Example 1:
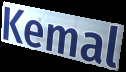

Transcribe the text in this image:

Kemal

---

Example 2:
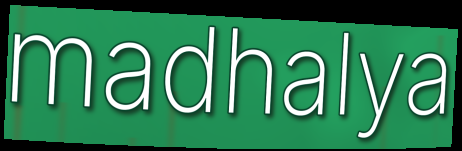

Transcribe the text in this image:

madhalya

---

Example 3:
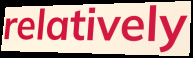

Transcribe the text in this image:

relatively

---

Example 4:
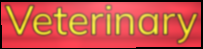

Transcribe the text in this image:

Veterinary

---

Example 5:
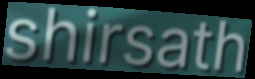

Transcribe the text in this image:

shirsath